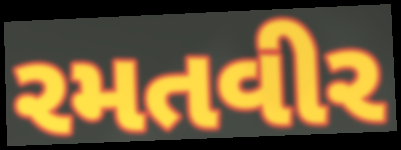
રમતવીર